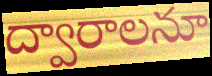
ద్వారాలనూ